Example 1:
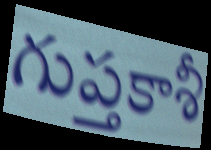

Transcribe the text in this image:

గుప్తకాశీ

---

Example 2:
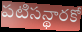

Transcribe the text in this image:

పటిసన్థారకో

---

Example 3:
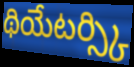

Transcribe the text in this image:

థియేటర్స్కి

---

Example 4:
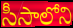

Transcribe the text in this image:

సీసాలోని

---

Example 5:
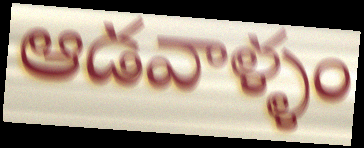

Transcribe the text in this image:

ఆడవాళ్ళం